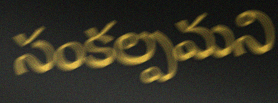
సంకల్పమని